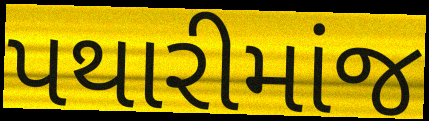
પથારીમાંજ